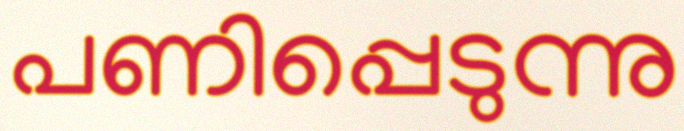
പണിപ്പെടുന്നു